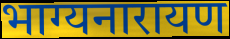
भाग्यनारायण